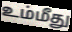
உம்மீது